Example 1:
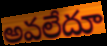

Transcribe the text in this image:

అవలేదూ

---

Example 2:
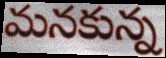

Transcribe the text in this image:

మనకున్న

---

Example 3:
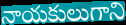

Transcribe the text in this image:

నాయకులుగాని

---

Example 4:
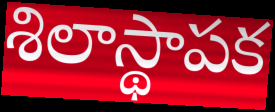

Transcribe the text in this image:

శిలాస్థాపక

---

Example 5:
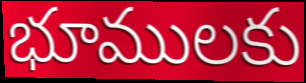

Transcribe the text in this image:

భూములకు